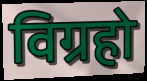
विग्रहो